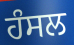
ਹੰਸਲ